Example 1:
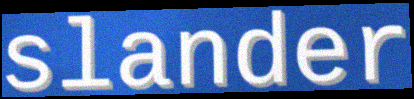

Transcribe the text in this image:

slander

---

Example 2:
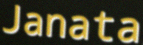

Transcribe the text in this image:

Janata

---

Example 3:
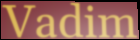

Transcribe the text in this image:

Vadim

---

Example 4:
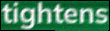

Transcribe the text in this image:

tightens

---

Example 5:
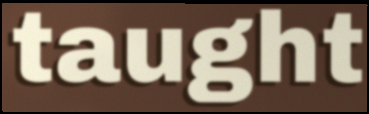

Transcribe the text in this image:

taught